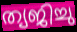
ത്യജിച്ചു